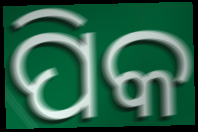
ପିକ